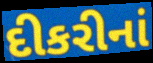
દીકરીનાં